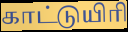
காட்டுயிரி